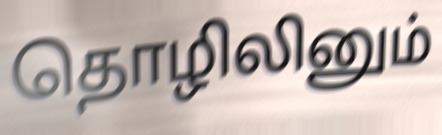
தொழிலினும்